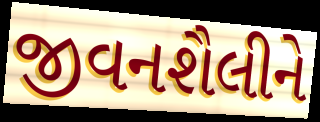
જીવનશૈલીને